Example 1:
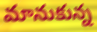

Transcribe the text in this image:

మానుకున్న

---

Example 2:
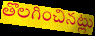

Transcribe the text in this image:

తొలగించినట్లు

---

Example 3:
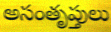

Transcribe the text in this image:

అసంతృప్తులు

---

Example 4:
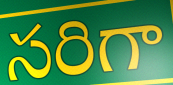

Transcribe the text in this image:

సరిగా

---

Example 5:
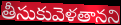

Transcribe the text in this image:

తీసుకువెళతానని